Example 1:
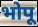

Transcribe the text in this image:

भोपू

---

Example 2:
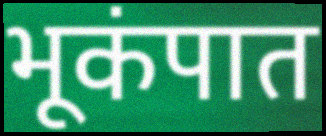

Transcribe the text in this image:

भूकंपात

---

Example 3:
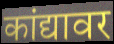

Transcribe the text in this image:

कांद्यावर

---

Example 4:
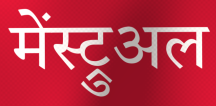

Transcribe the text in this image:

मेंस्ट्रुअल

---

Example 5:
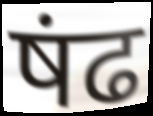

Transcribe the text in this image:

षंढ